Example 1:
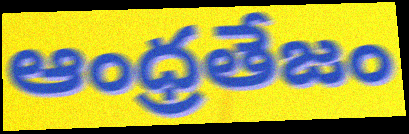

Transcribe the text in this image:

ఆంధ్రతేజం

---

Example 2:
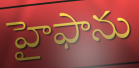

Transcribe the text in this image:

హైఫాను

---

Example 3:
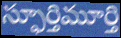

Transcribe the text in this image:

స్ఫూర్తిమూర్తి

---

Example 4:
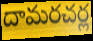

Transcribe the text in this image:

దామరచర్ల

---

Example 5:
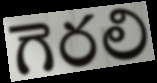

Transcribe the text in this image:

గెరలి